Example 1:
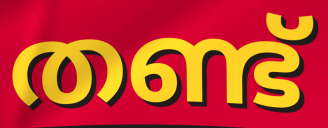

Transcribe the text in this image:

തണ്ട്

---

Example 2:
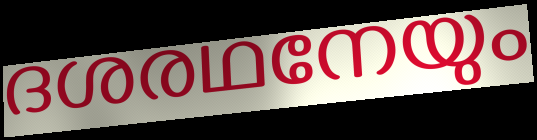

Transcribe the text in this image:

ദശരഥനേയും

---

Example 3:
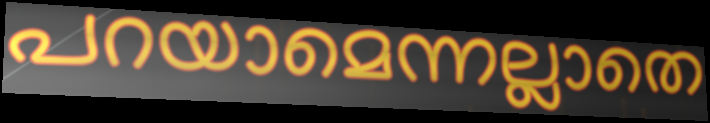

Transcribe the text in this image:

പറയാമെന്നല്ലാതെ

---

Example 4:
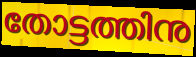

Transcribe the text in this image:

തോട്ടത്തിനു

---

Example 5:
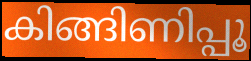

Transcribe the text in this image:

കിങ്ങിണിപ്പൂ